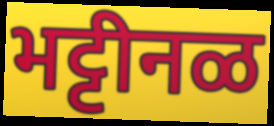
भट्टीनळ